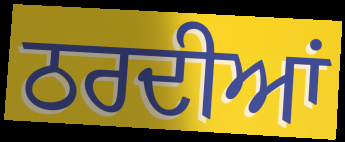
ਠਰਦੀਆਂ